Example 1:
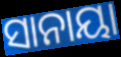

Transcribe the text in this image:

ସାନାୟା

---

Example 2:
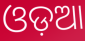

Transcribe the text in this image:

ଓଡ଼ଆ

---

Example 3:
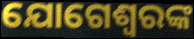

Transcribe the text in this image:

ଯୋଗେଶ୍ୱରଙ୍କ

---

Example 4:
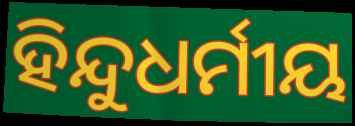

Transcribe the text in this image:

ହିନ୍ଦୁଧର୍ମୀୟ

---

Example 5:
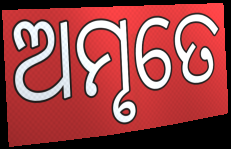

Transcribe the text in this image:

ଅମୃତେ